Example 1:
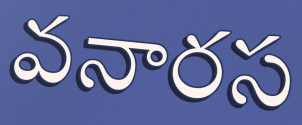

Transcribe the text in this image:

వనారస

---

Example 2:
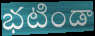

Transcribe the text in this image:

భటిండా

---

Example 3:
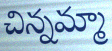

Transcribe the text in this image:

చిన్నమ్మా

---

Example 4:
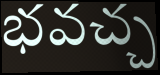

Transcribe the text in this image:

భవచ్చ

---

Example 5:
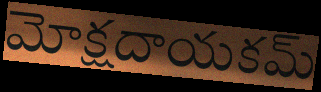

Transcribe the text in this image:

మోక్షదాయకమ్